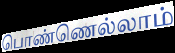
பொண்ணெல்லாம்